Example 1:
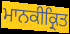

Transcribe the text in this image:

ਮਾਨਕੀਕ੍ਰਿਤ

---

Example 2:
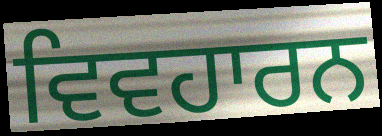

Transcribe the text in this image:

ਵਿਵਹਾਰਨ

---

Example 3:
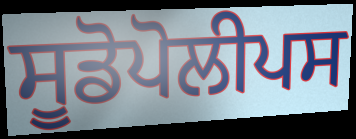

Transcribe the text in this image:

ਸੂਡੋਪੋਲੀਪਸ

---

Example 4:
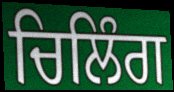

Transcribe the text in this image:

ਚਿਲਿੰਗ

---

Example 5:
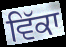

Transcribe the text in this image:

ਵਿੱਕਾ